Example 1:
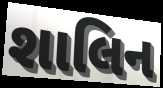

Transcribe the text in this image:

શાલિન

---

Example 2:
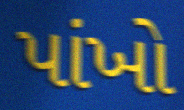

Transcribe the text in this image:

પાંખો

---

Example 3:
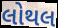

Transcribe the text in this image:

લોથલ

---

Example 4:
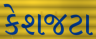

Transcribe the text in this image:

કેશજટા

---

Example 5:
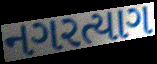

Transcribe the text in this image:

નગરત્યાગ